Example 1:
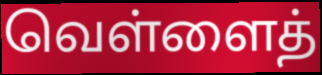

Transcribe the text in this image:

வெள்ளைத்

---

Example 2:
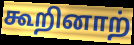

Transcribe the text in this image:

கூறினாற்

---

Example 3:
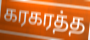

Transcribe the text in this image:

கரகரத்த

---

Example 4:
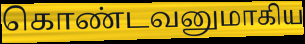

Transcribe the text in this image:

கொண்டவனுமாகிய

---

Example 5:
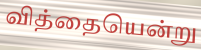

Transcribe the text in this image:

வித்தையென்று